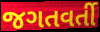
જગતવર્તી